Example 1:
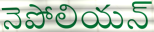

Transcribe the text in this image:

నెపోలియన్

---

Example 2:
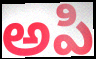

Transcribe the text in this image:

అపి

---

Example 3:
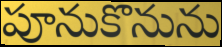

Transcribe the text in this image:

పూనుకొనును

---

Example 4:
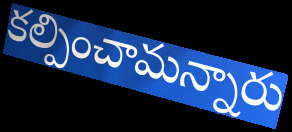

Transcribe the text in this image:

కల్పించామన్నారు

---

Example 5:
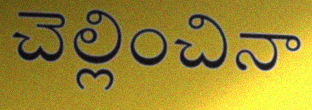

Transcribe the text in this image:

చెల్లించినా